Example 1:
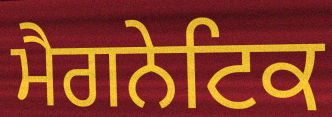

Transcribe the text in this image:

ਮੈਗਨੇਟਿਕ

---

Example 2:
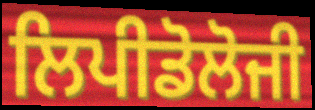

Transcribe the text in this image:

ਲਿਪੀਡੋਲੋਜੀ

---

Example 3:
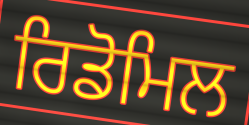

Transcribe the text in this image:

ਰਿਡੋਮਿਲ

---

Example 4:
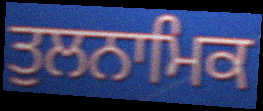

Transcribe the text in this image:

ਤੁਲਨਾਮਿਕ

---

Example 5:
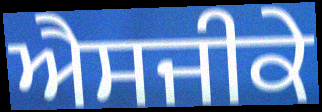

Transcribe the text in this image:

ਐਸਜੀਕੇ